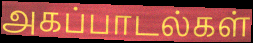
அகப்பாடல்கள்